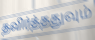
தவிர்த்ததுவும்